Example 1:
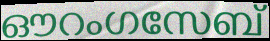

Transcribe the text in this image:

ഔറംഗസേബ്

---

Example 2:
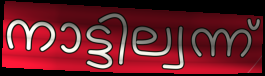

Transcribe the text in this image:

നാട്ടില്വന്ന്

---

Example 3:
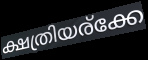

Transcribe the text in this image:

ക്ഷത്രിയര്ക്കേ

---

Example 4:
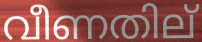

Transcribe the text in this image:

വീണതില്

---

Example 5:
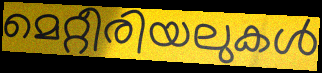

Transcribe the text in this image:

മെറ്റീരിയലുകൾ